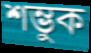
শম্ভুক